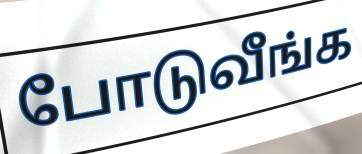
போடுவீங்க